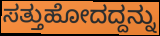
ಸತ್ತುಹೋದದ್ದನ್ನು